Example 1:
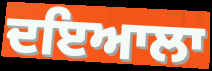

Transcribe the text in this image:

ਦਇਆਲਾ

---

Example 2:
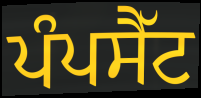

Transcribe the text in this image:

ਪੰਪਸੈੱਟ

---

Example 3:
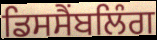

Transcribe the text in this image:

ਡਿਸਸੈਂਬਲਿੰਗ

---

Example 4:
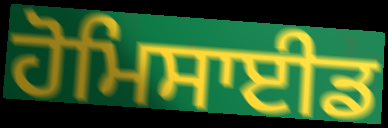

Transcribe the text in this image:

ਹੋਮਿਸਾਈਡ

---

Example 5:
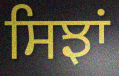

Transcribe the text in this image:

ਸਿਝਾਂ